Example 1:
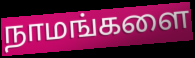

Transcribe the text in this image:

நாமங்களை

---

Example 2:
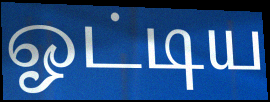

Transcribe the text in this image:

ஓட்டிய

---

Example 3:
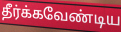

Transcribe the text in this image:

தீர்க்கவேண்டிய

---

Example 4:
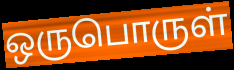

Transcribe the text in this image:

ஒருபொருள்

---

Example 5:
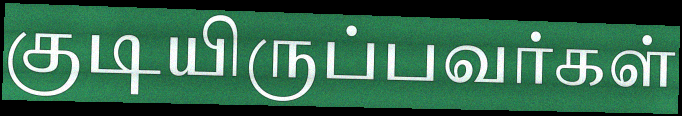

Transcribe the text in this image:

குடியிருப்பவர்கள்